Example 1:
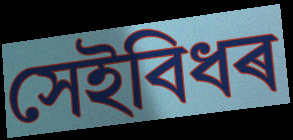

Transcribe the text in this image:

সেইবিধৰ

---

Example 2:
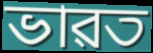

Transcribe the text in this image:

ভাৱত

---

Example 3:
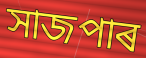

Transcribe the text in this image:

সাজপাৰ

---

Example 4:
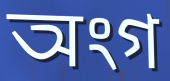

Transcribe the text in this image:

অংগ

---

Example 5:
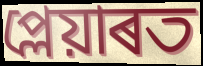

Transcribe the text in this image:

প্লেয়াৰত